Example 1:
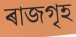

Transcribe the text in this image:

ৰাজগৃহ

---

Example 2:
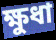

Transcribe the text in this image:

ক্ষুধা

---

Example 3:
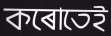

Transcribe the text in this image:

কৰোতেই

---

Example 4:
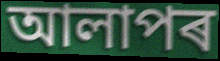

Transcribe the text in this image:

আলাপৰ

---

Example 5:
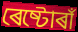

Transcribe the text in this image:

ৰেষ্টোৰাঁ